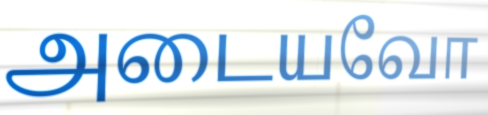
அடையவோ